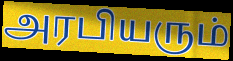
அரபியரும்